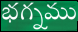
భగ్నము